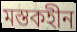
মস্তকহীন